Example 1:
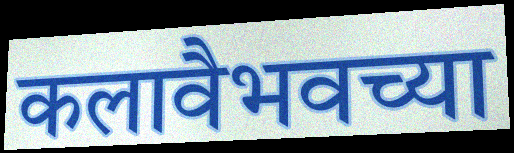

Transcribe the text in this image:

कलावैभवच्या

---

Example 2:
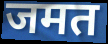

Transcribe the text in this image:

जमत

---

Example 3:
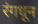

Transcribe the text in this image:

रंगधून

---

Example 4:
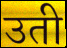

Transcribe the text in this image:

उती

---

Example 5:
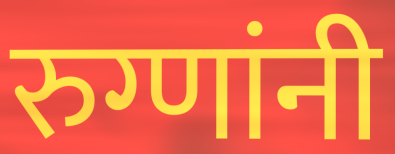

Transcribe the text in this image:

रुग्णांनी